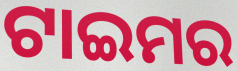
ଟାଇମର